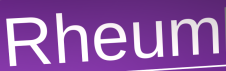
Rheum